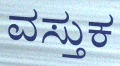
ವಸ್ತುಕ